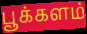
பூக்களம்